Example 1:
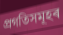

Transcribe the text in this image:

প্ৰগতিসমূহৰ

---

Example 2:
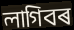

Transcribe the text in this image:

লাগিবৰ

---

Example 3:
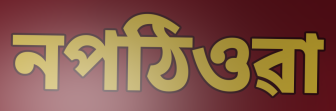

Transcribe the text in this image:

নপঠিওৱা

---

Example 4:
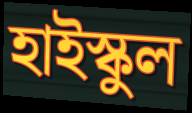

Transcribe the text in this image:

হাইস্কুল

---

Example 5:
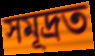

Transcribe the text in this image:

সমূদ্ৰত